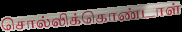
சொல்லிக்கொண்டாள்